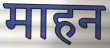
माहन